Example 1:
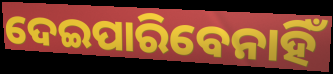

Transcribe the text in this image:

ଦେଇପାରିବେନାହିଁ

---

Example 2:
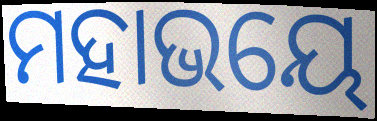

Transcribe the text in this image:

ମହାଭୟେ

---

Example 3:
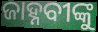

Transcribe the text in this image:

ଜାହ୍ନବୀଙ୍କୁ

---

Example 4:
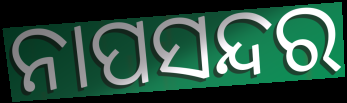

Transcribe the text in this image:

ନାପସନ୍ଦର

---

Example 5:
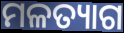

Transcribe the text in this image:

ମଳତ୍ୟାଗ